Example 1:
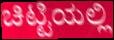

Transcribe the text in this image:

ಚಿಟ್ಟಿಯಲ್ಲಿ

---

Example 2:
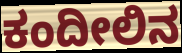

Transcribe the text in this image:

ಕಂದೀಲಿನ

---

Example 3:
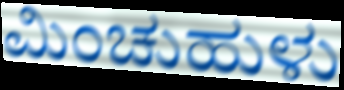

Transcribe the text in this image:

ಮಿಂಚುಹುಳು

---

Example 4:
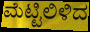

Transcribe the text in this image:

ಮೆಟ್ಟಿಲಿಳಿದ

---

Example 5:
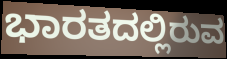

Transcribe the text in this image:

ಭಾರತದಲ್ಲಿರುವ